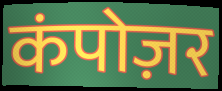
कंपोज़र